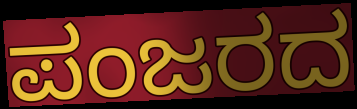
ಪಂಜರದ